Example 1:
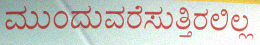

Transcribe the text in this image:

ಮುಂದುವರೆಸುತ್ತಿರಲಿಲ್ಲ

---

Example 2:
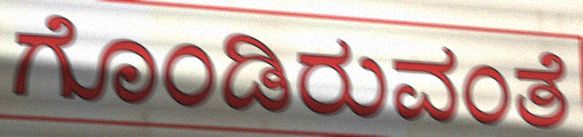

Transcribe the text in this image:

ಗೊಂಡಿರುವಂತೆ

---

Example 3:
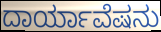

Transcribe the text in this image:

ದಾರ್ಯಾವೆಷನು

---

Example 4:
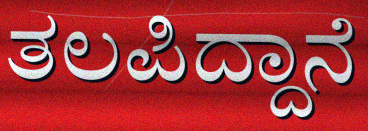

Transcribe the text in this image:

ತಲಪಿದ್ದಾನೆ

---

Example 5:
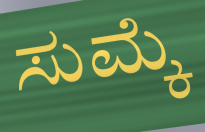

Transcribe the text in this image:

ಸುಮ್ಕೆ